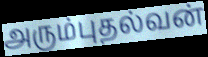
அரும்புதல்வன்